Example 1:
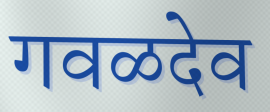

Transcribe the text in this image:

गवळदेव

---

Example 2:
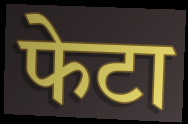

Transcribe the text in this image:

फेटा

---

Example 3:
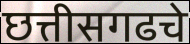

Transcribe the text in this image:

छत्तीसगढचे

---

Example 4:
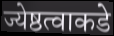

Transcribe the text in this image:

ज्येष्ठत्वाकडे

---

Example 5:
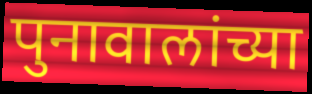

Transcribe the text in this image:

पुनावालांच्या